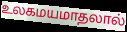
உலகமயமாதலால்